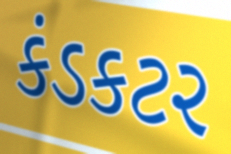
કંડકટર